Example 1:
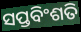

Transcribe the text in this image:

ସପ୍ତବିଂଶତି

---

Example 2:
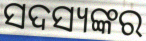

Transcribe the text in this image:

ସଦସ୍ୟଙ୍କର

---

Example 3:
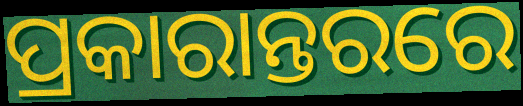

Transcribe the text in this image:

ପ୍ରକାରାନ୍ତରରେ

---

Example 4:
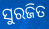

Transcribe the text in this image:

ସୁରଜିତ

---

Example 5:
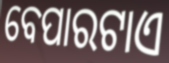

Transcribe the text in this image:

ବେପାରଟାଏ